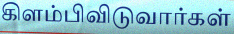
கிளம்பிவிடுவார்கள்